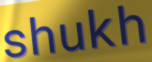
shukh